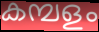
കമ്പളം